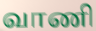
வாணி